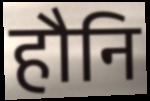
हौनि